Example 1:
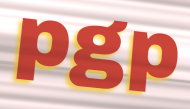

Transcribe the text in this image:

pgp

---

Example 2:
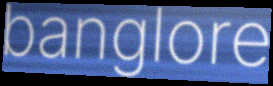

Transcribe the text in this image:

banglore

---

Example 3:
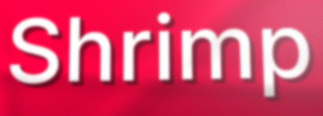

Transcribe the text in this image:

Shrimp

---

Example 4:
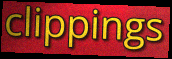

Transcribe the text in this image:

clippings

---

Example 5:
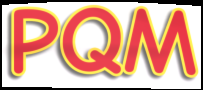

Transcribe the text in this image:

PQM